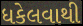
ધકેલવાથી